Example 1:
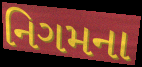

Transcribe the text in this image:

નિગમના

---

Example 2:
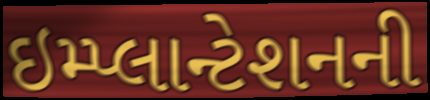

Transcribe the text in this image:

ઇમ્પ્લાન્ટેશનની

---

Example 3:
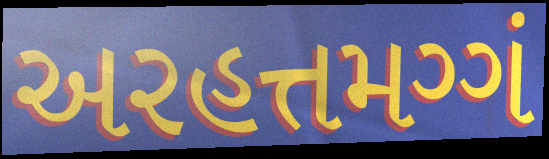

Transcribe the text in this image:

અરહત્તમગ્ગં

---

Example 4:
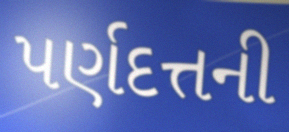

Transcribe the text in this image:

પર્ણદત્તની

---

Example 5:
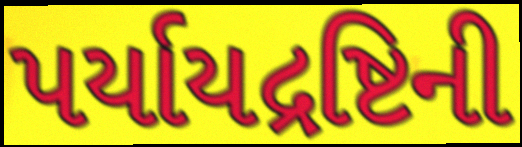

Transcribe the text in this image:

પર્યાયદ્રષ્ટિની